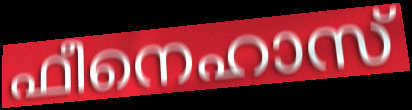
ഫീനെഹാസ്